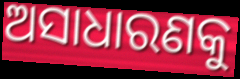
ଅସାଧାରଣକୁ